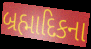
બ્રહ્માદિકના